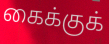
கைக்குக்